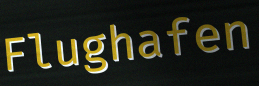
Flughafen